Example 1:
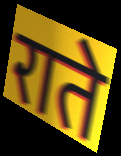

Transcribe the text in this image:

राते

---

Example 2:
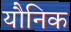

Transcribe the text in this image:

यौनिक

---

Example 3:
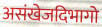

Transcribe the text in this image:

असंखेजदिभागो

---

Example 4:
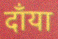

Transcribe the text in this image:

दाँया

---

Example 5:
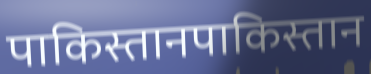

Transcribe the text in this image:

पाकिस्तानपाकिस्तान